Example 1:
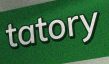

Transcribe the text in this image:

tatory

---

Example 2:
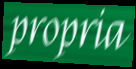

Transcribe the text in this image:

propria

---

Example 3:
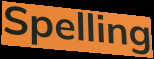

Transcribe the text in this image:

Spelling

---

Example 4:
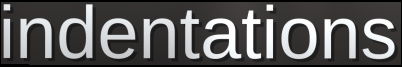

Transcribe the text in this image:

indentations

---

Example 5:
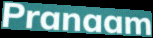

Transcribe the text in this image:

Pranaam